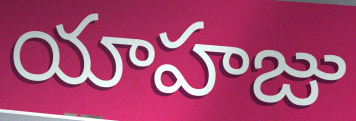
యాహజు